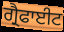
ਗ੍ਰੈਫਾਈਟ